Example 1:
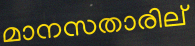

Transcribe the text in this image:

മാനസതാരില്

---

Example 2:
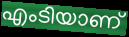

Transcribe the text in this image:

എംടിയാണ്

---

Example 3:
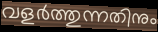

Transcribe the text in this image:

വളർത്തുന്നതിനും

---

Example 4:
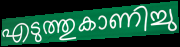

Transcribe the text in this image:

എടുത്തുകാണിച്ചു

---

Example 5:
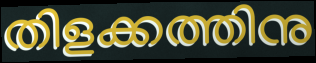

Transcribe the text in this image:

തിളക്കത്തിനു